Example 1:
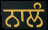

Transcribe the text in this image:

ਨਾਲੰ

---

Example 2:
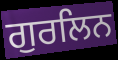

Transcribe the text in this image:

ਗੁਰਲਿਨ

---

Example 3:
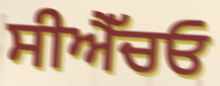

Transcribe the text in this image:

ਸੀਐੱਚਓ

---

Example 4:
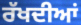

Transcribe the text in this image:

ਰੱਖਦੀਆਂ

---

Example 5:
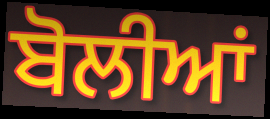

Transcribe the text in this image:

ਬੋਲੀਆਂ